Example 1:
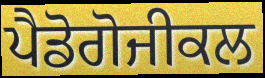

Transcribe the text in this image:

ਪੈਡੋਗੋਜੀਕਲ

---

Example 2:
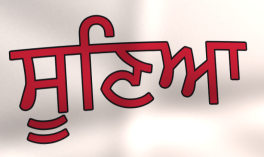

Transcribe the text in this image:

ਸੂਣਿਆ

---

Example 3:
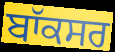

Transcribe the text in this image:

ਬਾੱਕਸਰ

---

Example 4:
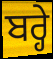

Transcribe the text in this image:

ਬਰ੍ਹੇ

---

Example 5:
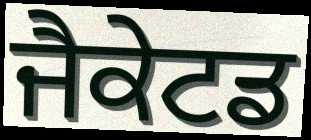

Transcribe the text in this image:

ਜੈਕੇਟਡ